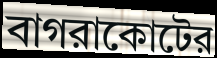
বাগরাকোটের